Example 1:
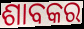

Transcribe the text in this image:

ଶାବକର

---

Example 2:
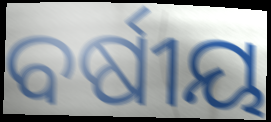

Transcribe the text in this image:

ବର୍ଷୀୟ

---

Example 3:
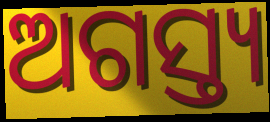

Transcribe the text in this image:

ଅଗସ୍ତ୍ୟ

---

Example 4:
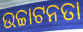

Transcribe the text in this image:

ଉଚ୍ଚାଟନତା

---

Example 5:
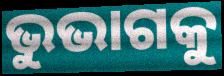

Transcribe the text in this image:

ଭୁଭାଗକୁ